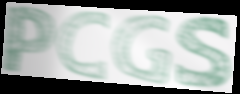
PCGS